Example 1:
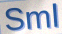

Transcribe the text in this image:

Sml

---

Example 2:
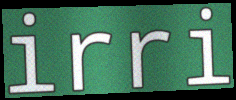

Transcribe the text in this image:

irri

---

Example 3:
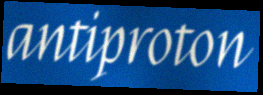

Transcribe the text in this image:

antiproton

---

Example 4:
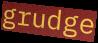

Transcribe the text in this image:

grudge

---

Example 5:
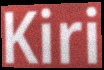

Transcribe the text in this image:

Kiri